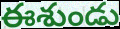
ఈశుండు